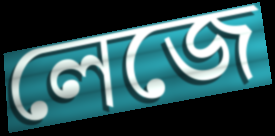
লেজে